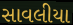
સાવલીયા